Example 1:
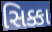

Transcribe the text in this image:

સિક્કા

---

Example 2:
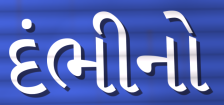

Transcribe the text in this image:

દંભીનો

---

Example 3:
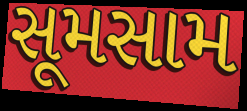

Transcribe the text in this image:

સૂમસામ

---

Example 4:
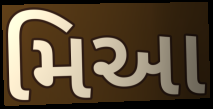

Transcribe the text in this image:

મિઆ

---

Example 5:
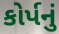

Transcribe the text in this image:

કોર્પનું